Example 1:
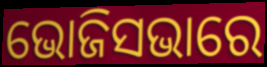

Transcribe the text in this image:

ଭୋଜିସଭାରେ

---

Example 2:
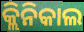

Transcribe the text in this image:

କ୍ଲିନିକାଲ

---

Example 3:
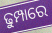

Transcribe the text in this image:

ଢୁମ୍ପାରେ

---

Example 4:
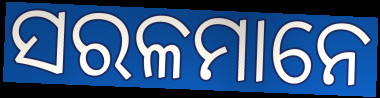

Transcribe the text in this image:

ସରଳମାନେ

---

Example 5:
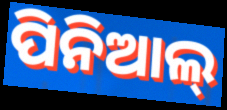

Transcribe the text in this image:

ପିନିଆଲ୍